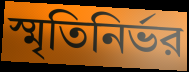
স্মৃতিনির্ভর